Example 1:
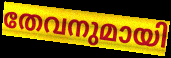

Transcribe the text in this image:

തേവനുമായി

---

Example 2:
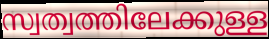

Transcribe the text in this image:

സ്വത്വത്തിലേക്കുള്ള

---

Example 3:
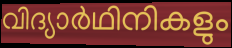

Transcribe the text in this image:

വിദ്യാർഥിനികളും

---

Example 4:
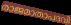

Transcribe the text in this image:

രാജമാതാപദവി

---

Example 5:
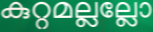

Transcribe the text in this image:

കുറ്റമല്ലല്ലോ